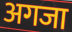
अगजा